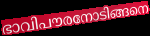
ഭാവിപൗരനോടിങ്ങനെ